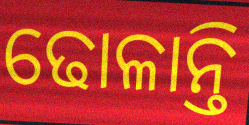
ଢୋଳାନ୍ତି